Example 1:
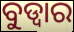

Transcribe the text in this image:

ବୁଡ୍ୱାର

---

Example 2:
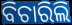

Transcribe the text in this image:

ବିଚାରିଲି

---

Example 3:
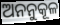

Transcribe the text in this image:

ଅନନୁକୂଳ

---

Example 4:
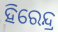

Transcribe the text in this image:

ହିରେନ୍ଦ୍ର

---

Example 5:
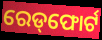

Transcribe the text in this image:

ରେଡ୍‌ଫୋର୍ଟ